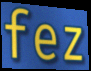
fez